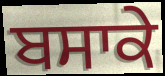
ਬਸਾਕੇ